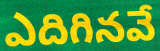
ఎదిగినవే